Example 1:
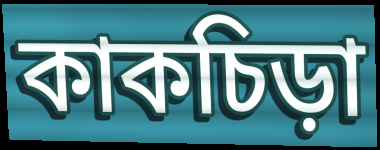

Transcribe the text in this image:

কাকচিড়া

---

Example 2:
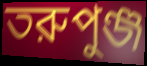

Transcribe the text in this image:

তরুপুঞ্জ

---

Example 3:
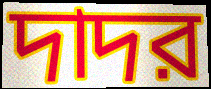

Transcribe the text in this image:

দাদর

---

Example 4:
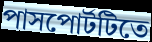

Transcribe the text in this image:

পাসপোর্টটিতে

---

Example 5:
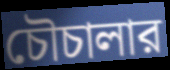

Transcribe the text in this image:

চৌচালার